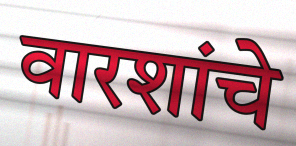
वारशांचे